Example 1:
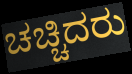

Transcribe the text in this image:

ಚಚ್ಚಿದರು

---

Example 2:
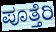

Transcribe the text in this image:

ಪೂತ್ತೆರಿ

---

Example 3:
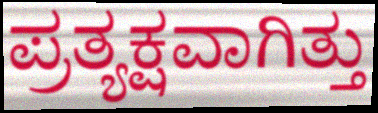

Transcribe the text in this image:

ಪ್ರತ್ಯಕ್ಷವಾಗಿತ್ತು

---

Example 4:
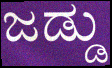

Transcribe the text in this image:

ಜಡ್ಡು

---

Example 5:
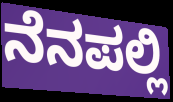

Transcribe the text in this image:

ನೆನಪಲ್ಲಿ